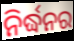
ନିର୍ଦ୍ଧନର